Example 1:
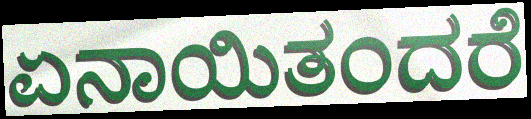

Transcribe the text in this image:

ಏನಾಯಿತಂದರೆ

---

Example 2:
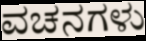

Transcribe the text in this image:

ವಚನಗಳು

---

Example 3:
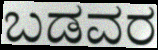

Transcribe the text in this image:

ಬಡವರ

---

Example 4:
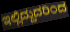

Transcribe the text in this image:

ಇಲ್ಲಿದ್ದುದರಿಂದ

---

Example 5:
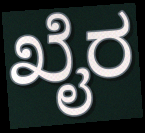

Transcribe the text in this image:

ಖೈರ